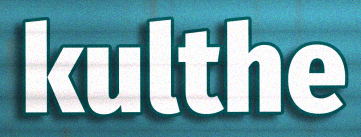
kulthe